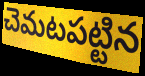
చెమటపట్టిన